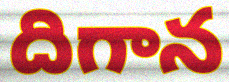
దిగాన